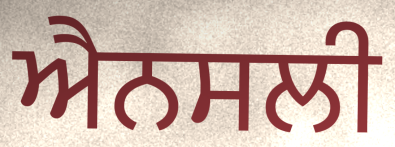
ਐਨਸਲੀ